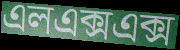
এলএক্সএক্স